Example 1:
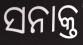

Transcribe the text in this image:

ସନାକ୍ତ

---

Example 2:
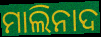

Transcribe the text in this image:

ମାଲିନାଦ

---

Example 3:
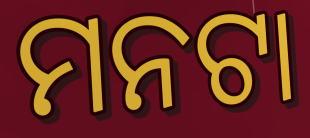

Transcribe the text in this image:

ମନଟା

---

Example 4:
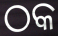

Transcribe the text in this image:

ଠକ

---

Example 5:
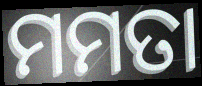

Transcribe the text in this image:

ମମତା